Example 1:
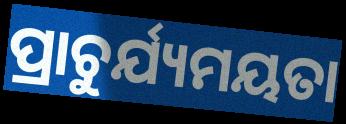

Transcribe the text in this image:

ପ୍ରାଚୁର୍ଯ୍ୟମୟତା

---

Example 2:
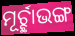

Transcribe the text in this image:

ମୂର୍ଚ୍ଛାଭଙ୍ଗ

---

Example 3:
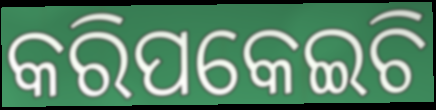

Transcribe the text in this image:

କରିପକେଇଚି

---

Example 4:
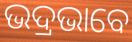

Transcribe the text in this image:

ଭଦ୍ରଭାବେ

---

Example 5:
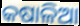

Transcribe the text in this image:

କଷାଳିଆ